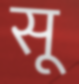
सू